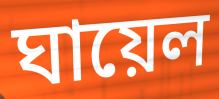
ঘায়েল